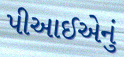
પીઆઈએનું